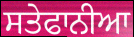
ਸਤੇਫਾਨੀਆ